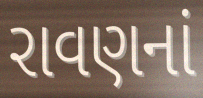
રાવણનાં